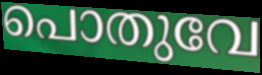
പൊതുവേ